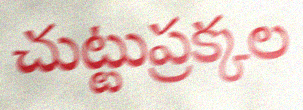
చుట్టుప్రక్కల